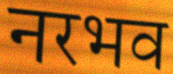
नरभव